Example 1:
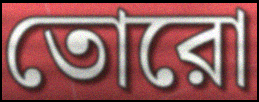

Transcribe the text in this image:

তোরো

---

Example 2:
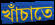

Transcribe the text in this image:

খাঁচাতে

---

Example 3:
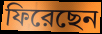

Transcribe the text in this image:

ফিরেছেন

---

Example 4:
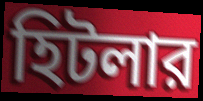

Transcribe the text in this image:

হিটলার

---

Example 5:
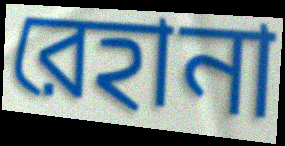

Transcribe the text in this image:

রেহানা